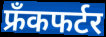
फ्रँकफर्टर